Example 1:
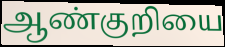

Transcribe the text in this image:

ஆண்குறியை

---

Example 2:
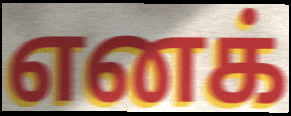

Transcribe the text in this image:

எனக்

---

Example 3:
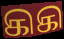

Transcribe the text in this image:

கிகி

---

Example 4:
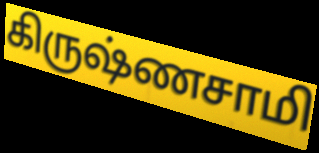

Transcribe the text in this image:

கிருஷ்ணசாமி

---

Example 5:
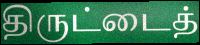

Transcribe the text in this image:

திருட்டைத்